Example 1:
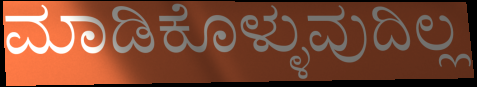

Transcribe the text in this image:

ಮಾಡಿಕೊಳ್ಳುವುದಿಲ್ಲ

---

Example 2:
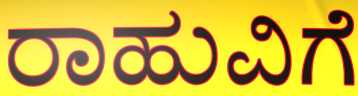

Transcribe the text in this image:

ರಾಹುವಿಗೆ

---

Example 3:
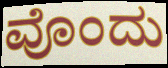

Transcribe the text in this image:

ವೊಂದು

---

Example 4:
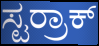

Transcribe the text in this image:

ಸ್ಟರ್ರಾಕ್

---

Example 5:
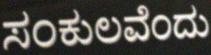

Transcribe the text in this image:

ಸಂಕುಲವೆಂದು